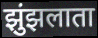
झुंझलाता